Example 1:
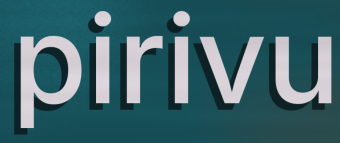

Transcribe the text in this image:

pirivu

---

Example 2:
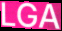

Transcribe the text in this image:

LGA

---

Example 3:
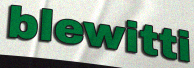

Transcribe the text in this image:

blewitti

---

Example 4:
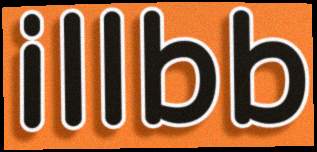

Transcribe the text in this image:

illbb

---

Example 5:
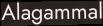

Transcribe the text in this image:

Alagammal